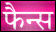
फैन्स